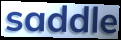
saddle